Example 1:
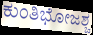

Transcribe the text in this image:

ಕುಂತಿಭೋಜಶ್ಚ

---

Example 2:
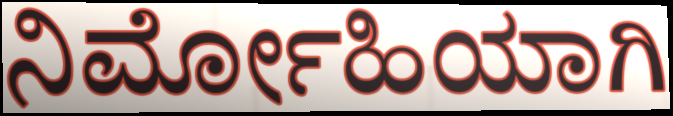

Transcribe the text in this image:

ನಿರ್ಮೋಹಿಯಾಗಿ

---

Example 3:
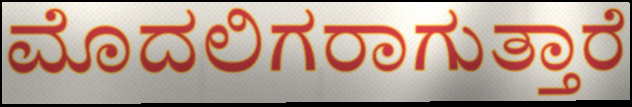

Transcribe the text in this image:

ಮೊದಲಿಗರಾಗುತ್ತಾರೆ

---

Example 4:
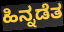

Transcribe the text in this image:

ಹಿನ್ನಡೆತ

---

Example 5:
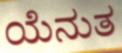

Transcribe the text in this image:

ಯೆನುತ